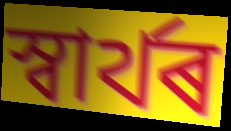
স্বাৰ্থৰ